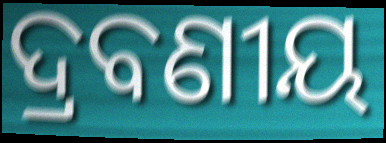
ଦ୍ରବଣୀୟ